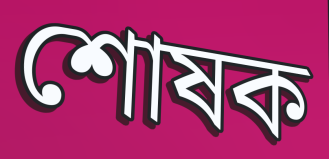
শোষক